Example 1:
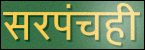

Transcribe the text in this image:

सरपंचही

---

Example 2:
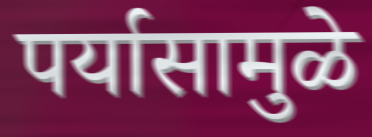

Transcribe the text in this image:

पर्यासामुळे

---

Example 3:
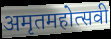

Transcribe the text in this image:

अमृतमहोत्सवी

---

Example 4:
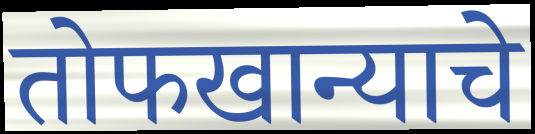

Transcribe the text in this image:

तोफखान्याचे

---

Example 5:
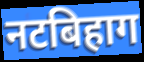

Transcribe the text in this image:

नटबिहाग